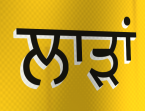
ਲਾੜਾਂ